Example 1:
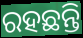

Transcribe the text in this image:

ରହଛନ୍ତି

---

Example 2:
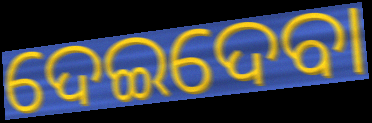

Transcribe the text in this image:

ଦେଇଦେବା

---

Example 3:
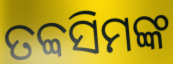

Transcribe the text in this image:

ତବ୍ବସିମଙ୍କ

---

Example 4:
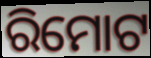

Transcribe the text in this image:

ରିମୋଟ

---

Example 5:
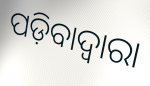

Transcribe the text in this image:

ପଡ଼ିବାଦ୍ୱାରା